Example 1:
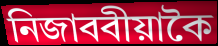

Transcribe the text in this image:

নিজাববীয়াকৈ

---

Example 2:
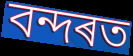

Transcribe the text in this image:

বন্দৰত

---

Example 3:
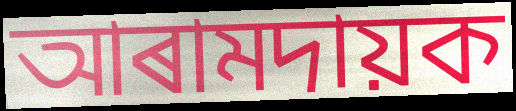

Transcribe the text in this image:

আৰামদায়ক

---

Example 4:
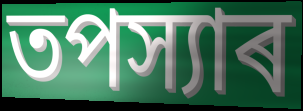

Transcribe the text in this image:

তপস্যাৰ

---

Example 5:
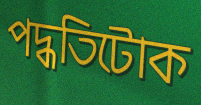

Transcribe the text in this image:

পদ্ধতিটোক